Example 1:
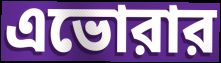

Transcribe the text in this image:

এভোরার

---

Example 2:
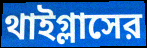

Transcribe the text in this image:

থাইগ্লাসের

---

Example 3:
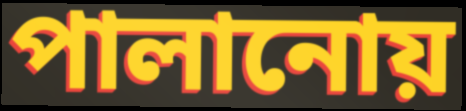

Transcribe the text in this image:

পালানোয়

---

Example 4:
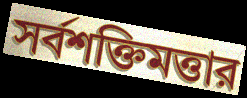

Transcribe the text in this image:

সর্বশক্তিমত্তার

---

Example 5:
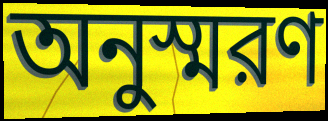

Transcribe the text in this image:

অনুস্মরণ